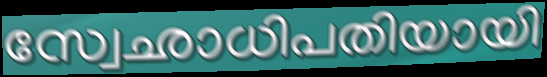
സ്വേഛാധിപതിയായി